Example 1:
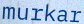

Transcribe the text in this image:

murkar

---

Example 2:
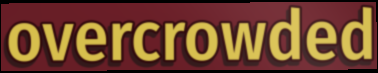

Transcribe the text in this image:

overcrowded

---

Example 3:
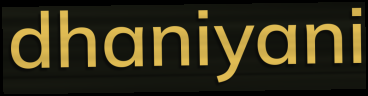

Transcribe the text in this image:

dhaniyani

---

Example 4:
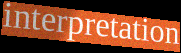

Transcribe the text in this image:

interpretation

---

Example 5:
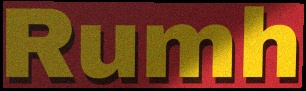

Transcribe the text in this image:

Rumh